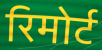
रिमोर्ट